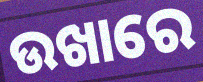
ଉଖାରେ